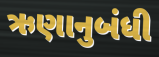
ઋણાનુબંધી